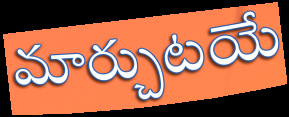
మార్చుటయే